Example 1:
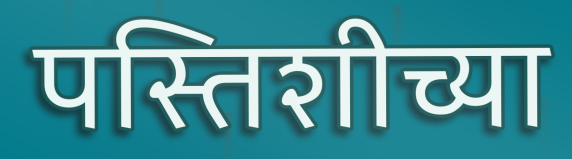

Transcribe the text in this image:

पस्तिशीच्या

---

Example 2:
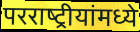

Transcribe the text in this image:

परराष्ट्रीयांमध्ये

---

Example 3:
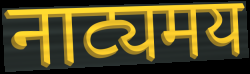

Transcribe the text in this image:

नाट्यमय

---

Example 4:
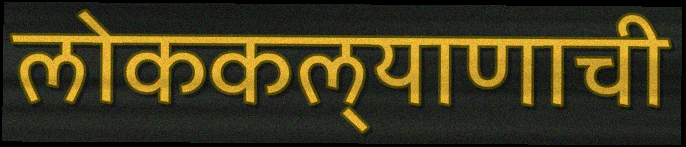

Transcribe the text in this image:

लोककल्याणाची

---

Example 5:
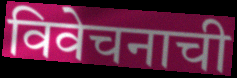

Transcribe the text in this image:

विवेचनाची